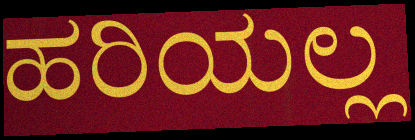
ಹರಿಯಲ್ಲ